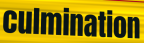
culmination